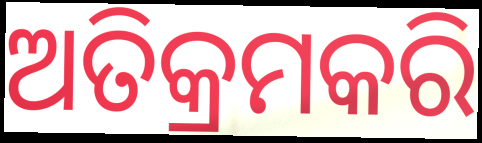
ଅତିକ୍ରମକରି